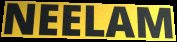
NEELAM